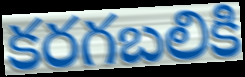
కరగబలికి